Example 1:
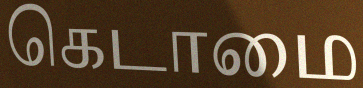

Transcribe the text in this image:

கெடாமை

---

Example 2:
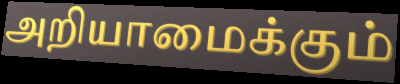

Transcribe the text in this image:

அறியாமைக்கும்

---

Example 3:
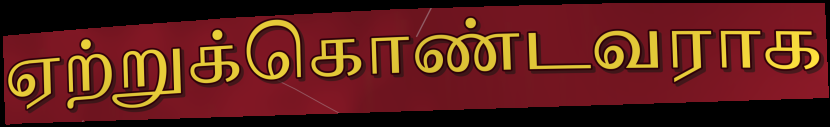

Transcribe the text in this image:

ஏற்றுக்கொண்டவராக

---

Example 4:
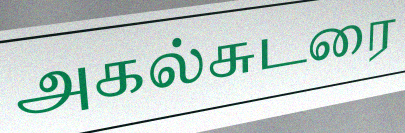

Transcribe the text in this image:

அகல்சுடரை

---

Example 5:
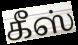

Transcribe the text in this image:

கீஸ்